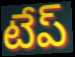
టేప్